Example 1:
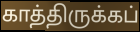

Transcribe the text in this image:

காத்திருக்கப்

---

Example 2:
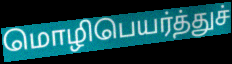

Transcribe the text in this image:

மொழிபெயர்த்துச்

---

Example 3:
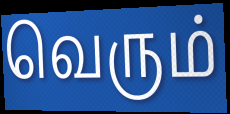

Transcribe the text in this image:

வெரும்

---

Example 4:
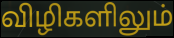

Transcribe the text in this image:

விழிகளிலும்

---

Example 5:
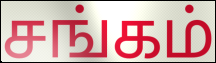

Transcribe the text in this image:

சங்கம்